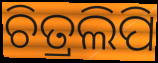
ଚିତ୍ରଲିପି